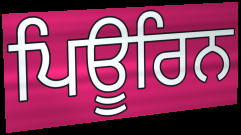
ਪਿਊਰਿਨ